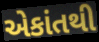
એકાંતથી